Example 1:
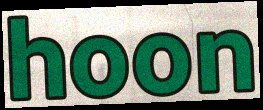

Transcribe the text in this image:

hoon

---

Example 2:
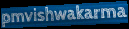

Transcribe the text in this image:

pmvishwakarma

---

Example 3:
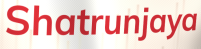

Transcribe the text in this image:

Shatrunjaya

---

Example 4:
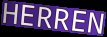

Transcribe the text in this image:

HERREN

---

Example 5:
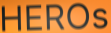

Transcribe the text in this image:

HEROs